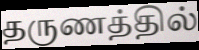
தருணத்தில்